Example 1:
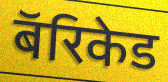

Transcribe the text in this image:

बॅरिकेड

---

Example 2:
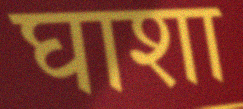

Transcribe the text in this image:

घाशा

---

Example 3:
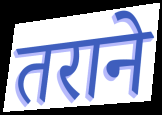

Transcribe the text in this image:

तराने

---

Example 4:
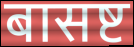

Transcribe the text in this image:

बासष्ट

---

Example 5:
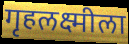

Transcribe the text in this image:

गृहलक्ष्मीला